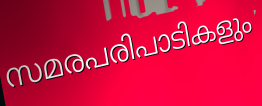
സമരപരിപാടികളും